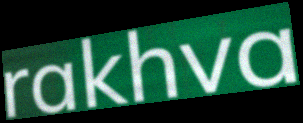
rakhva